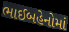
ભાઈબહેનોમાં